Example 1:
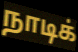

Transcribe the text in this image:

நாடிக்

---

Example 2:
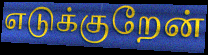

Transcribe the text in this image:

எடுக்குறேன்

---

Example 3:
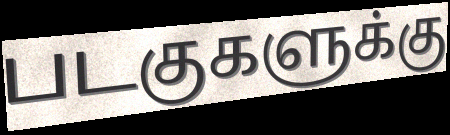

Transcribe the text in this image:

படகுகளுக்கு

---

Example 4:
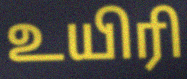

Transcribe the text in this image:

உயிரி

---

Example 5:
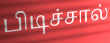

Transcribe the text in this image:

பிடிச்சால்